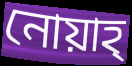
নোয়াহ্